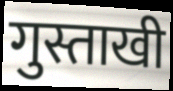
गुस्ताखी